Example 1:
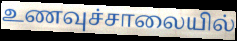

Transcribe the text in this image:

உணவுச்சாலையில்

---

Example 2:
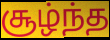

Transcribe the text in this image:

சூழ்ந்த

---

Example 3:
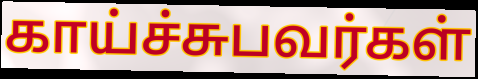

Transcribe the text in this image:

காய்ச்சுபவர்கள்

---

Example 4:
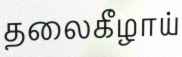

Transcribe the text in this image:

தலைகீழாய்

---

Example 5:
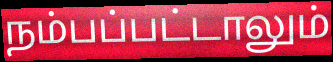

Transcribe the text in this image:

நம்பப்பட்டாலும்